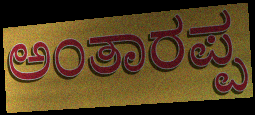
ಅಂತಾರಪ್ಪ